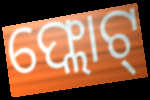
ଫ୍ଲୋଟ୍